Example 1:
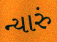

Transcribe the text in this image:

ન્યારું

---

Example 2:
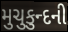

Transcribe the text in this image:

મુચુકુન્દની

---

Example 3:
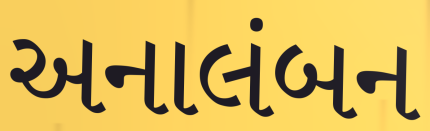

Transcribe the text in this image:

અનાલંબન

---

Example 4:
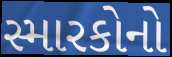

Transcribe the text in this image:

સ્મારકોનો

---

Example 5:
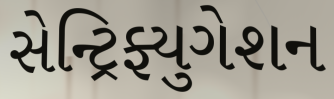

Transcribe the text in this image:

સેન્ટ્રિફ્યુગેશન